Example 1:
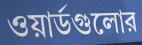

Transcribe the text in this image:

ওয়ার্ডগুলোর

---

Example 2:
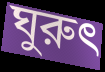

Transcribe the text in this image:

ঘুরুৎ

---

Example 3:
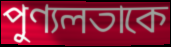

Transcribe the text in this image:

পুণ্যলতাকে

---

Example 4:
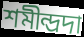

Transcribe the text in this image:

শমীন্দ্রদা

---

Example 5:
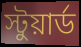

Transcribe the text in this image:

স্টুয়ার্ড